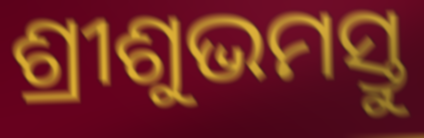
ଶ୍ରୀଶୁଭମସ୍ତୁ